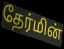
தேர்மின்